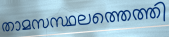
താമസസ്ഥലത്തെത്തി